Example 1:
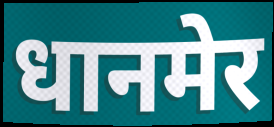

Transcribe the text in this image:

धानमेर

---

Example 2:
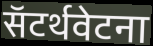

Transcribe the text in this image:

सॅटर्थवेटना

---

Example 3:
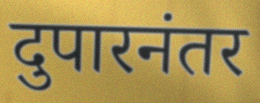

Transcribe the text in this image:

दुपारनंतर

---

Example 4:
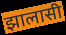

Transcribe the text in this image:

झालासी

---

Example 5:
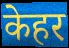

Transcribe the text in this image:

केहर